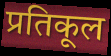
प्रतिकूल